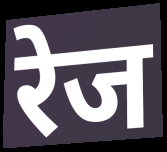
रेज